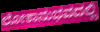
ಲೋಕಾನುಭವದಲ್ಲಿ